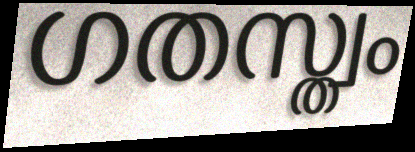
ഗതസ്ത്വം